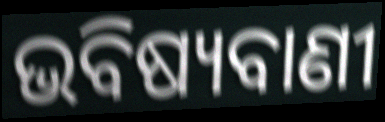
ଭବିଷ୍ୟବାଣୀ